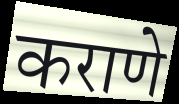
कराणे